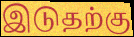
இடுதற்கு